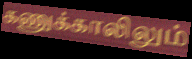
கணுக்காலிலும்